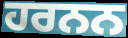
ਹਰਨਨ